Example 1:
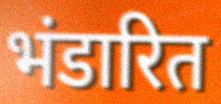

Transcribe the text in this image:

भंडारित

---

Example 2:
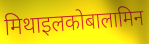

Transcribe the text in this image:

मिथाइलकोबालामिन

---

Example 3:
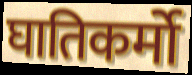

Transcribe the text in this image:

घातिकर्मो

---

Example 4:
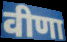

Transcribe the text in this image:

वीणा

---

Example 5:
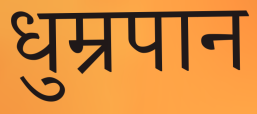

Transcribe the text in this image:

धुम्रपान